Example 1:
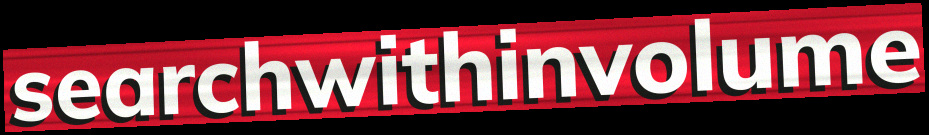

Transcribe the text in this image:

searchwithinvolume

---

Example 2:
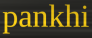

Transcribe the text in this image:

pankhi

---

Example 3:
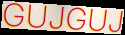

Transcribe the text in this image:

GUJGUJ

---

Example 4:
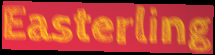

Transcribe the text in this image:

Easterling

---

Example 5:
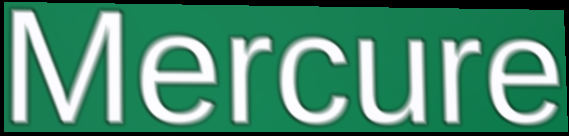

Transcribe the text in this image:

Mercure